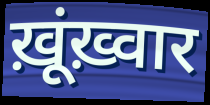
ख़ूंख़्वार